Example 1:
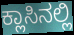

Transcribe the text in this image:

ಕ್ಲಾಸಿನಲ್ಲಿ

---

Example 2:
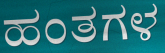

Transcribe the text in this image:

ಹಂತಗಳ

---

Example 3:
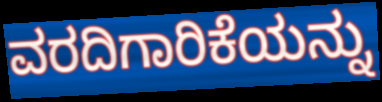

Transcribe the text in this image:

ವರದಿಗಾರಿಕೆಯನ್ನು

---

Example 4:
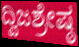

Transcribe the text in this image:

ದ್ವಿಜಶ್ರೇಷ್ಠ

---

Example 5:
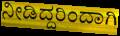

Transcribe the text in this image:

ನೀಡಿದ್ದರಿಂದಾಗಿ